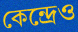
কেন্দ্রেও